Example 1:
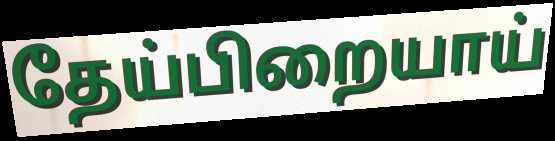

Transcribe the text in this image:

தேய்பிறையாய்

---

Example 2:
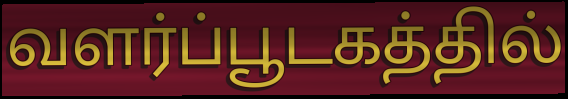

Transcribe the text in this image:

வளர்ப்பூடகத்தில்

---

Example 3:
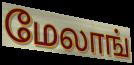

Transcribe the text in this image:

மேலாங்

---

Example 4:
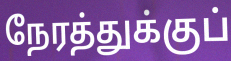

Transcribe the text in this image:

நேரத்துக்குப்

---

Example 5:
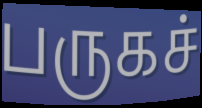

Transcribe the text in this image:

பருகச்